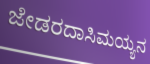
ಜೇಡರದಾಸಿಮಯ್ಯನ